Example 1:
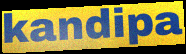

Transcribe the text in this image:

kandipa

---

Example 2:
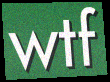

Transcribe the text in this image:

wtf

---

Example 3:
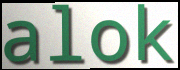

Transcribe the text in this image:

alok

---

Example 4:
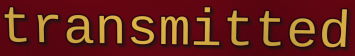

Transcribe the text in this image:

transmitted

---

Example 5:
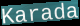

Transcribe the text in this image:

Karada